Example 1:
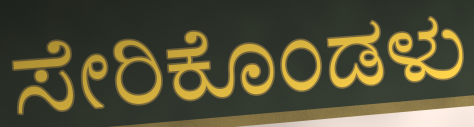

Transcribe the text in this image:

ಸೇರಿಕೊಂಡಳು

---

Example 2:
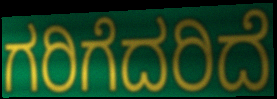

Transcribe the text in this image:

ಗರಿಗೆದರಿದೆ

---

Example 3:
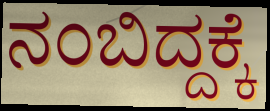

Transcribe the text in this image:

ನಂಬಿದ್ದಕ್ಕೆ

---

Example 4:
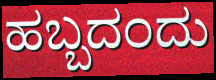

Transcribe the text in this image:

ಹಬ್ಬದಂದು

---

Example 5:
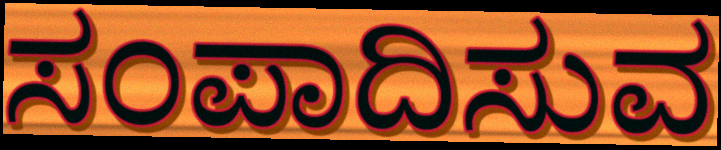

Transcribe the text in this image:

ಸಂಪಾದಿಸುವ